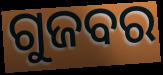
ଗୁଜବର